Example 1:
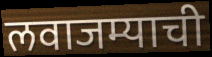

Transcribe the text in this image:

लवाजम्याची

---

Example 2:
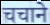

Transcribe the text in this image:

चचाने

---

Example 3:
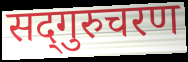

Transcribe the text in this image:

सद्‍गुरुचरण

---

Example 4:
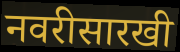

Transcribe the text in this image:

नवरीसारखी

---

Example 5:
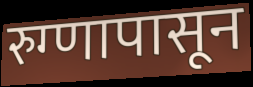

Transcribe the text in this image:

रुग्णापासून